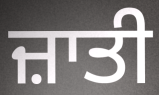
ਜ਼ਾਤੀ